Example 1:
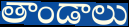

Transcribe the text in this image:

తాండాలు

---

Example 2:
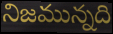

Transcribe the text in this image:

నిజమున్నది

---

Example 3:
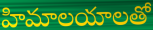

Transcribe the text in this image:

హిమాలయాలతో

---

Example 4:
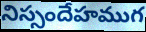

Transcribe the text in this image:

నిస్సందేహముగ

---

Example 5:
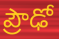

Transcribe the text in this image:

ప్రౌఢో